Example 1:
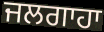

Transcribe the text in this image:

ਜਲਗਾਹਾ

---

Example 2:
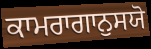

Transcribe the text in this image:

ਕਾਮਰਾਗਾਨੁਸਯੋ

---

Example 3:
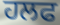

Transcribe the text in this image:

ਹਲਫ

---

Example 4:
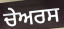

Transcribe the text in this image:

ਚੇਅਰਸ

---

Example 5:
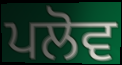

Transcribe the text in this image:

ਪਲੋਵ